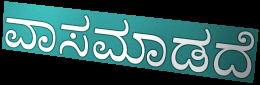
ವಾಸಮಾಡದೆ